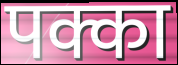
पक्का